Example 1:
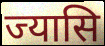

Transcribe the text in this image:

ज्यासि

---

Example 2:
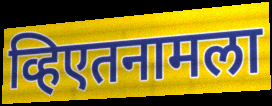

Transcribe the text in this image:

व्हिएतनामला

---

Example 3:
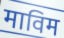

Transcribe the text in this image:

माविम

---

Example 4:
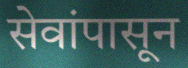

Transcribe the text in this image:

सेवांपासून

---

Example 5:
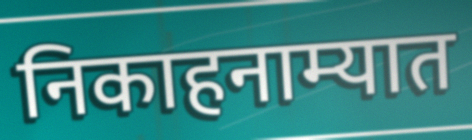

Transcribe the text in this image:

निकाहनाम्यात